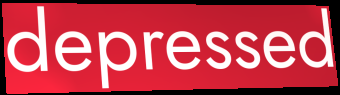
depressed